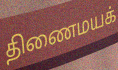
திணைமயக்